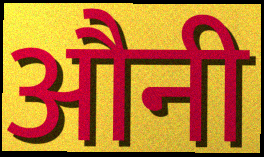
औनी